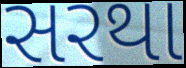
સરથા